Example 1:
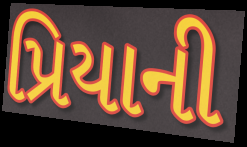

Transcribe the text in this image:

પ્રિયાની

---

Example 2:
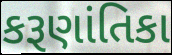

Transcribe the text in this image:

કરૂણાંતિકા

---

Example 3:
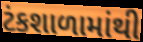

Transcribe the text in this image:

ટંકશાળામાંથી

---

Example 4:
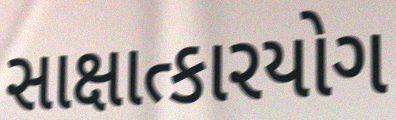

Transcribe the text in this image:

સાક્ષાત્કારયોગ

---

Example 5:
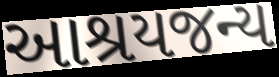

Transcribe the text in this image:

આશ્રયજન્ય